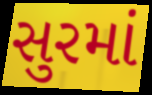
સુરમાં